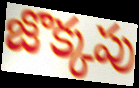
జొక్కపు